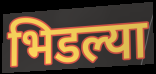
भिडल्या